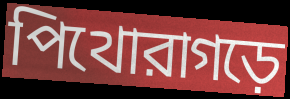
পিথোরাগড়ে